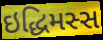
ઇદ્ધિમસ્સ